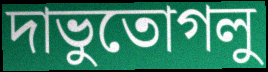
দাভুতোগলু